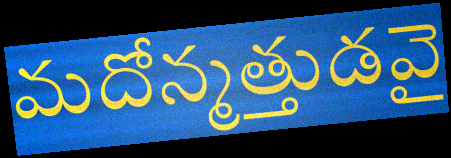
మదోన్మత్తుడవై